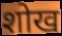
शोख